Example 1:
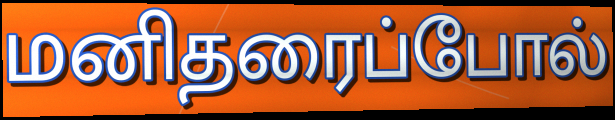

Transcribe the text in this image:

மனிதரைப்போல்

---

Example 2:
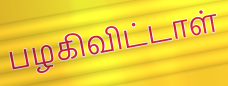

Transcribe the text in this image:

பழகிவிட்டாள்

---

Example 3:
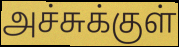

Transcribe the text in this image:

அச்சுக்குள்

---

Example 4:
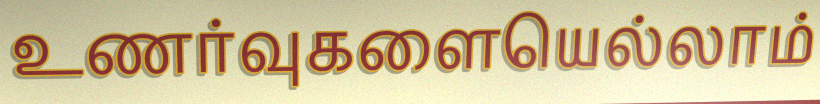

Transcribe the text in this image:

உணர்வுகளையெல்லாம்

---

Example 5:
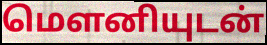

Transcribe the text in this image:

மௌனியுடன்